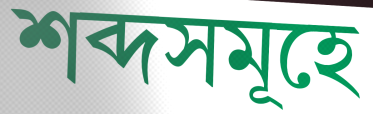
শব্দসমূহে